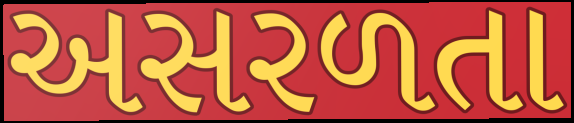
અસરળતા